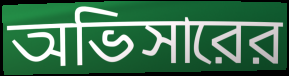
অভিসারের